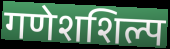
गणेशशिल्प